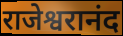
राजेश्वरानंद